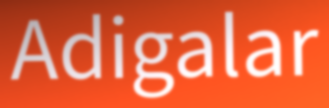
Adigalar